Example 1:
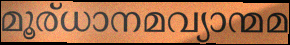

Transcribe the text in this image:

മൂര്ധാനമവ്യാന്മമ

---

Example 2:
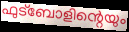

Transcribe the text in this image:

ഫുട്ബോളിന്റെയും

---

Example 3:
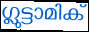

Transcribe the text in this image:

ഗ്ലുട്ടാമിക്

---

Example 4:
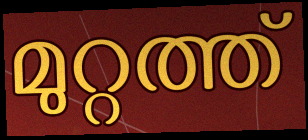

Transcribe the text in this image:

മുറ്റത്ത്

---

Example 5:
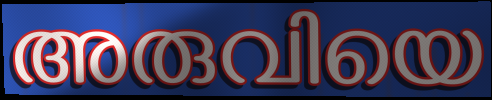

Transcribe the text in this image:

അരുവിയെ